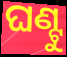
ଘଣ୍ଟୁ